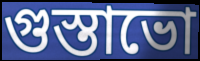
গুস্তাভো